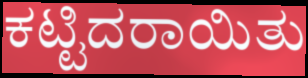
ಕಟ್ಟಿದರಾಯಿತು